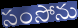
సంసోను